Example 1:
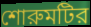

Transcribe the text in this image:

শোরুমটির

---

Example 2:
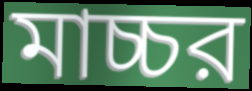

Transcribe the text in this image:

মাচ্চর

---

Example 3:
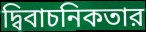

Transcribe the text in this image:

দ্বিবাচনিকতার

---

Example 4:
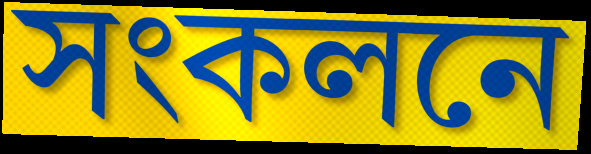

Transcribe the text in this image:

সংকলনে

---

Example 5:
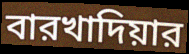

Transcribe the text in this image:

বারখাদিয়ার